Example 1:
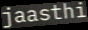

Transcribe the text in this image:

jaasthi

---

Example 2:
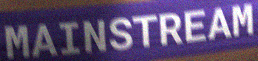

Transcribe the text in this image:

MAINSTREAM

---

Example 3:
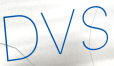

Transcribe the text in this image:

DVS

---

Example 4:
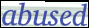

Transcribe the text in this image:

abused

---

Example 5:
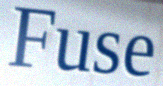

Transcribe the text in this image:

Fuse